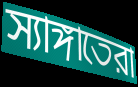
স্যাঙ্গাতেরা